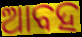
ଆବହ